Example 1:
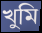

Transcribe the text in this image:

খুমি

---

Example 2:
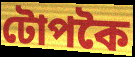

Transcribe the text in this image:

টোপকৈ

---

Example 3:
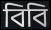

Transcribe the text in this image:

বিবি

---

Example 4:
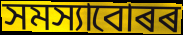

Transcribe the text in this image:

সমস্যাবোৰৰ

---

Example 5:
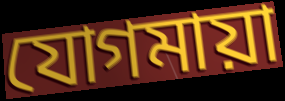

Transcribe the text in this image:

যোগমায়া